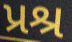
પ્રશ્ર